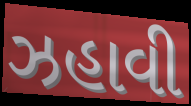
ઝહાવી